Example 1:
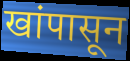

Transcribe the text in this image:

खांपासून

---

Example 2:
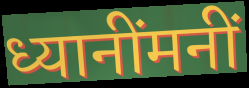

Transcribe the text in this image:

ध्यानींमनीं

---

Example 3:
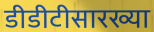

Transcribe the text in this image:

डीडीटीसारख्या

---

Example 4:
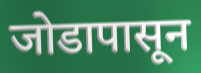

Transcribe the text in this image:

जोडापासून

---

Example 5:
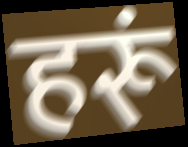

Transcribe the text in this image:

हरूं